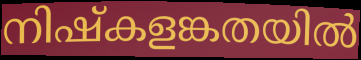
നിഷ്കളങ്കതയിൽ